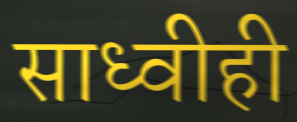
साध्वीही